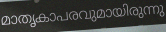
മാതൃകാപരവുമായിരുന്നു